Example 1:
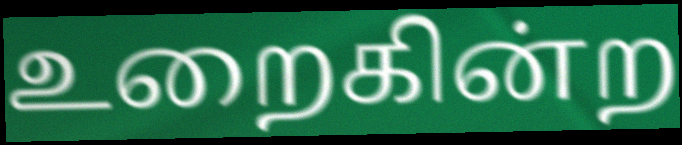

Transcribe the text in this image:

உறைகின்ற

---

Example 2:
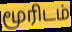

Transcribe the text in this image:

மூரிடம்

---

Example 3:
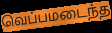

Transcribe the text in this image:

வெப்பமடைந்த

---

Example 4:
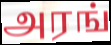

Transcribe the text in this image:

அரங்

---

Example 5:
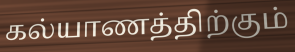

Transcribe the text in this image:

கல்யாணத்திற்கும்